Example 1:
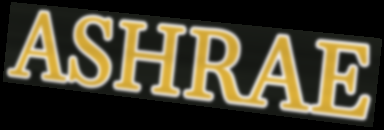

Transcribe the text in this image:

ASHRAE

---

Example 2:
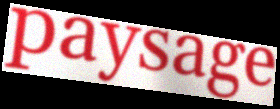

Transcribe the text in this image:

paysage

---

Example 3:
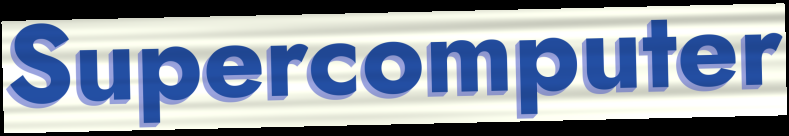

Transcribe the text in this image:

Supercomputer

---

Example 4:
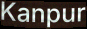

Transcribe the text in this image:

Kanpur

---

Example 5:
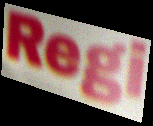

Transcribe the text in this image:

Regi